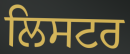
ਲਿਸਟਰ